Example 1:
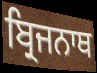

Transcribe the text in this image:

ਬ੍ਰਿਜਨਾਥ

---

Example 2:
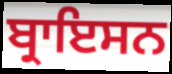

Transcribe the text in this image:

ਬ੍ਰਾਇਸਨ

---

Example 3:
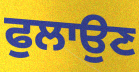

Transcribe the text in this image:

ਫੁਲਾਉਣ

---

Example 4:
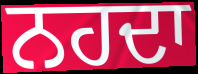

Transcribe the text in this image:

ਨਹਦਾ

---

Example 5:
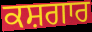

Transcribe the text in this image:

ਕਸ਼ਗਾਰ